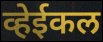
व्हेईकल